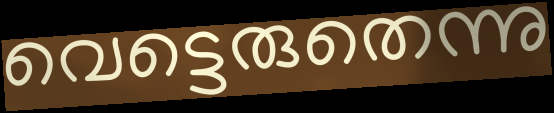
വെട്ടെരുതെന്നു